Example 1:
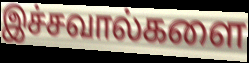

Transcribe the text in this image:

இச்சவால்களை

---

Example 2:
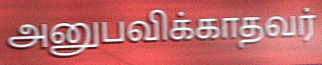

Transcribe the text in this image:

அனுபவிக்காதவர்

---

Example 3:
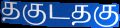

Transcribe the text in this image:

தகுடதகு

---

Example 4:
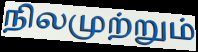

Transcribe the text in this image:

நிலமுற்றும்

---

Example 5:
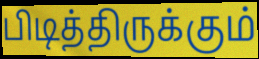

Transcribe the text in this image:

பிடித்திருக்கும்